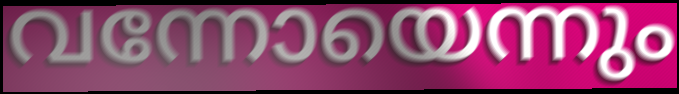
വന്നോയെന്നും